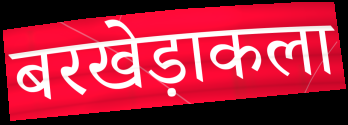
बरखेड़ाकला